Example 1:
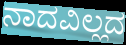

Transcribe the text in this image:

ನಾದವಿಲ್ಲದ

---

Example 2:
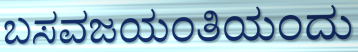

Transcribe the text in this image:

ಬಸವಜಯಂತಿಯಂದು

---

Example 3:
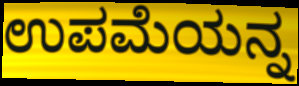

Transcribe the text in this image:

ಉಪಮೆಯನ್ನ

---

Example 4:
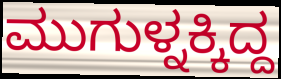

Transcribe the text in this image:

ಮುಗುಳ್ನಕ್ಕಿದ್ದ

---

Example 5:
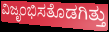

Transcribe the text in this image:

ವಿಜೃಂಭಿಸತೊಡಗಿತ್ತು